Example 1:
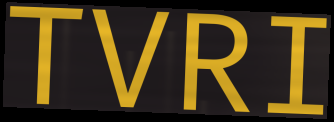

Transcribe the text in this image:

TVRI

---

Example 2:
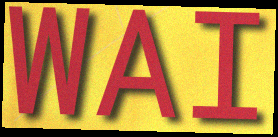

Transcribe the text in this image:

WAI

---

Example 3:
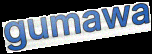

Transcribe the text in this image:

gumawa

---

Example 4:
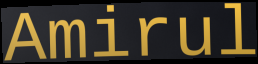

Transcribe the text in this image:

Amirul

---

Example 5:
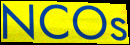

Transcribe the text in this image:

NCOs